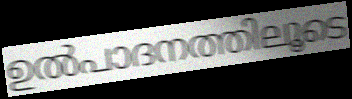
ഉൽപാദനത്തിലൂടെ